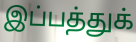
இப்பத்துக்